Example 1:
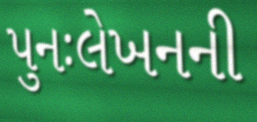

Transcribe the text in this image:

પુનઃલેખનની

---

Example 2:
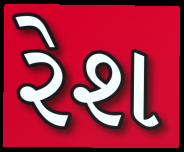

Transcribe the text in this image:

રેશ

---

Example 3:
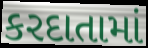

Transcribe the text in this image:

કરદાતામાં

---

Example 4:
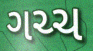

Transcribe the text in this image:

ગચ્ચ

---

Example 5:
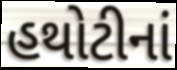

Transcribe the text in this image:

હથોટીનાં